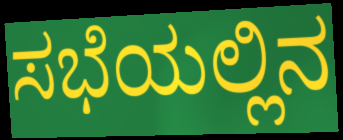
ಸಭೆಯಲ್ಲಿನ